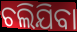
ଚଲିଯିବା